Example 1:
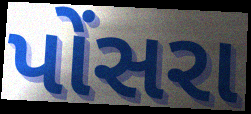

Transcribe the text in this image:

પોંસરા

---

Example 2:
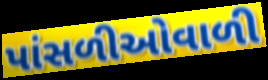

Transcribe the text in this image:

પાંસળીઓવાળી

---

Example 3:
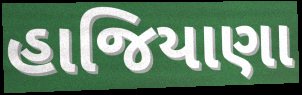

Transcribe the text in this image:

હાજિયાણા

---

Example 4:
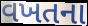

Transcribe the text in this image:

વખતના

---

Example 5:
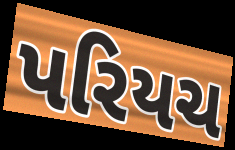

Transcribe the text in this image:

પરિયચ